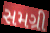
સમગ્રી